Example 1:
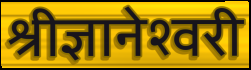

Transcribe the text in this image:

श्रीज्ञानेश्वरी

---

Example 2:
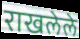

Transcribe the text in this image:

राखलेले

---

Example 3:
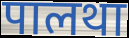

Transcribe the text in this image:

पालथा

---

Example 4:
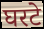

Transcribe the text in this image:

घरटे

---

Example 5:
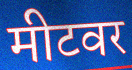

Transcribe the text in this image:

मीटवर